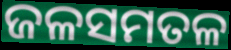
ଜଳସମତଳ